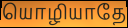
யொழியாதே